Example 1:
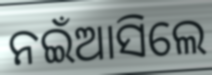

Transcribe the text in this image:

ନଇଁଆସିଲେ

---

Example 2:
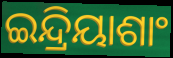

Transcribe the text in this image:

ଇନ୍ଦ୍ରିୟାଶାଂ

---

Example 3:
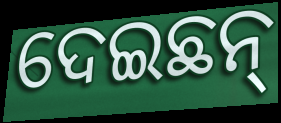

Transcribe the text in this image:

ଦେଇଛନ୍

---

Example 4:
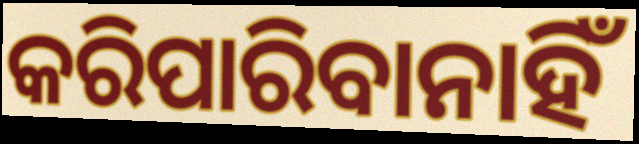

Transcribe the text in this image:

କରିପାରିବାନାହିଁ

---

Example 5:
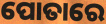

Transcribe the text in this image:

ପୋତାରେ